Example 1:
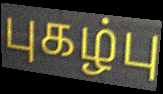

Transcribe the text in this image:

புகழ்பு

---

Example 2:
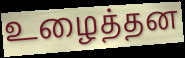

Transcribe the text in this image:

உழைத்தன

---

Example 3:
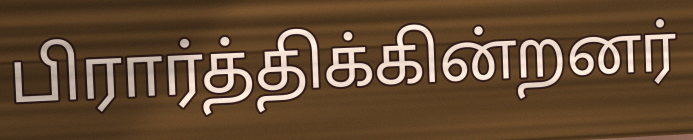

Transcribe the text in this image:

பிரார்த்திக்கின்றனர்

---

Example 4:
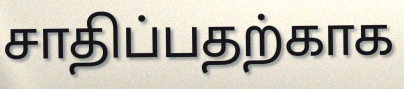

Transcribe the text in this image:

சாதிப்பதற்காக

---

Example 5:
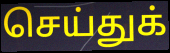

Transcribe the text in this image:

செய்துக்